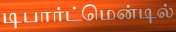
டிபார்ட்மென்டில்